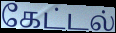
கேட்டல்